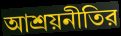
আশ্রয়নীতির